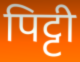
पिट्टी